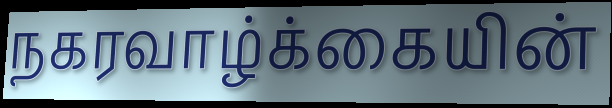
நகரவாழ்க்கையின்